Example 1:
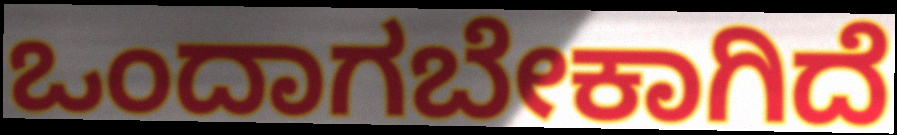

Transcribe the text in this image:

ಒಂದಾಗಬೇಕಾಗಿದೆ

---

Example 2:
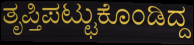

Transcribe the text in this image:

ತೃಪ್ತಿಪಟ್ಟುಕೊಂಡಿದ್ದ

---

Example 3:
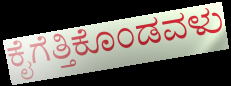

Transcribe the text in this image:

ಕೈಗೆತ್ತಿಕೊಂಡವಳು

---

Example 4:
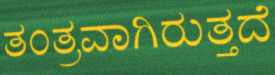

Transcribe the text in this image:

ತಂತ್ರವಾಗಿರುತ್ತದೆ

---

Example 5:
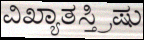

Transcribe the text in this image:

ವಿಖ್ಯಾತಸ್ತ್ರಿಷು